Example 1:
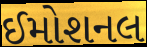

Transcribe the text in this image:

ઈમોશનલ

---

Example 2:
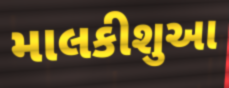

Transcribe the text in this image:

માલકીશુઆ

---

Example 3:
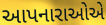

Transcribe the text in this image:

આપનારાઓએ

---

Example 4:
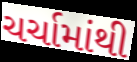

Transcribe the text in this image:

ચર્ચામાંથી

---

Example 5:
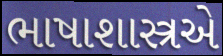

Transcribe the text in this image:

ભાષાશાસ્ત્રએ